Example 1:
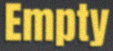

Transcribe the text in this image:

Empty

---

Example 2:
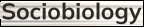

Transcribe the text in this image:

Sociobiology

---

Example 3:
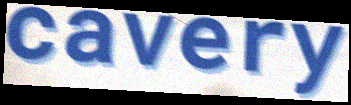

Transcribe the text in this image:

cavery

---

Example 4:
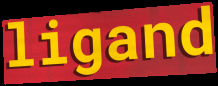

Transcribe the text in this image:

ligand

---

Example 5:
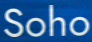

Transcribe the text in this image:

Soho